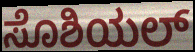
ಸೊಶಿಯಲ್